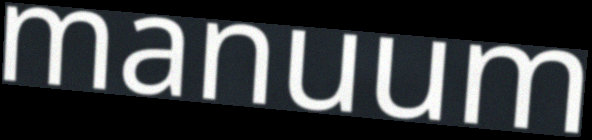
manuum